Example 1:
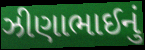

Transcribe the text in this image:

ઝીણાભાઈનું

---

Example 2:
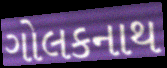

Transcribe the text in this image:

ગોલકનાથ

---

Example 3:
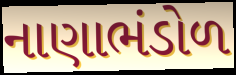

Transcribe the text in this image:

નાણાભંડોળ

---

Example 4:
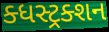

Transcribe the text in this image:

ક્ધસ્ટ્રક્શન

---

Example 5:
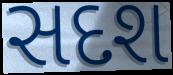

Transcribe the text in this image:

સદશ